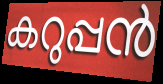
കറുപ്പൻ